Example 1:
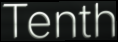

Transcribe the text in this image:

Tenth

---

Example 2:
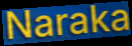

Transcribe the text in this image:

Naraka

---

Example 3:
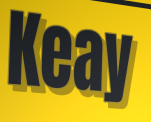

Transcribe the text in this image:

Keay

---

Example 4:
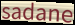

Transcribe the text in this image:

sadane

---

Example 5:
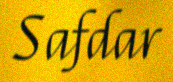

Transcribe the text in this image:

Safdar